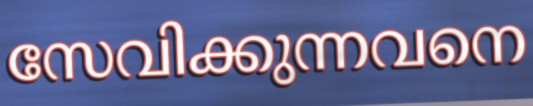
സേവിക്കുന്നവനെ